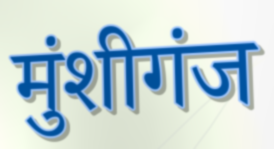
मुंशीगंज